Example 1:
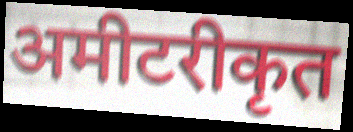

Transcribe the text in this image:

अमीटरीकृत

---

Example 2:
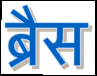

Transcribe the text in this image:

ब्रैस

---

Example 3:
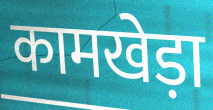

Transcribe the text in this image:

कामखेड़ा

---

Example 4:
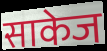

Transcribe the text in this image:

साकेज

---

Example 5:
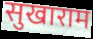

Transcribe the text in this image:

सुखाराम